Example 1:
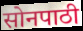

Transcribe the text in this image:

सोनपाठी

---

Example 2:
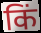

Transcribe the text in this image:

किं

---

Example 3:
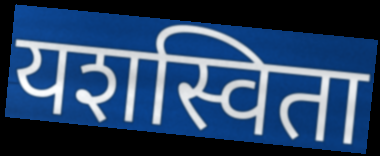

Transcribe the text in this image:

यशस्विता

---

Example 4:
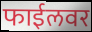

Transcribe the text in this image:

फाईलवर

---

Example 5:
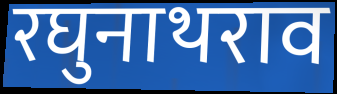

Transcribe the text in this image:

रघुनाथराव